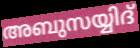
അബുസയ്യിദ്